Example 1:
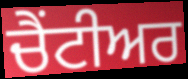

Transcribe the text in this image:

ਚੈਂਟੀਅਰ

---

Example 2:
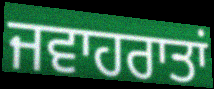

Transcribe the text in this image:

ਜਵਾਹਰਾਤਾਂ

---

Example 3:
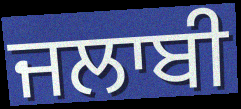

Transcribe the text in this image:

ਜਲਾਬੀ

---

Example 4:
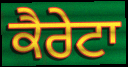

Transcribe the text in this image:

ਕੈਰੇਟਾ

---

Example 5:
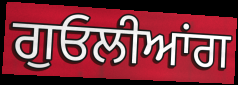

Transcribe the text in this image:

ਗੁਓਲੀਆਂਗ